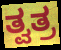
ತ್ವತ್ರ